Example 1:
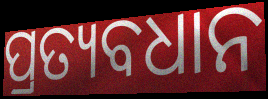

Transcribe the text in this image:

ପ୍ରତ୍ୟବଧାନ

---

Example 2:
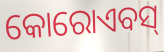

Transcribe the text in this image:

କୋରୋଏବସ୍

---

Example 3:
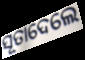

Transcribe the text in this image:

ସୂତାଦେଲେ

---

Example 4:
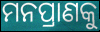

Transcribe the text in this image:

ମନପ୍ରାଣକୁ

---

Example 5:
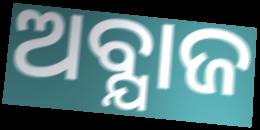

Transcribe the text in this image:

ଅବ୍ଯାଜ